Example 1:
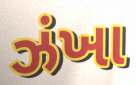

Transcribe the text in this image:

ઝંખા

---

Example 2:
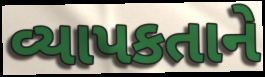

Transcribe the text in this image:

વ્યાપકતાને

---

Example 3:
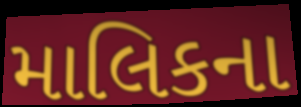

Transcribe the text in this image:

માલિકના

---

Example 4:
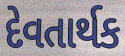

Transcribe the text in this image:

દેવતાર્થક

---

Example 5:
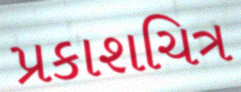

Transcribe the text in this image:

પ્રકાશચિત્ર